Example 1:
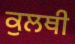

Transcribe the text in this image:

ਕੁਲਥੀ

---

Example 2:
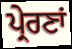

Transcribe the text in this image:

ਪ੍ਰੇਰਣਾਂ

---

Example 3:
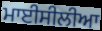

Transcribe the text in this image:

ਮਾਈਸੀਲੀਆ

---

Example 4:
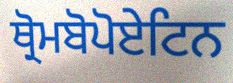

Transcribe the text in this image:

ਥ੍ਰੋਮਬੋਪੋਏਟਿਨ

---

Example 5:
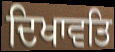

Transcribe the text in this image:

ਦਿਖਾਵਤਿ